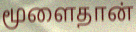
மூளைதான்